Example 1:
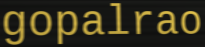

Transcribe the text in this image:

gopalrao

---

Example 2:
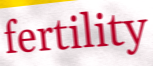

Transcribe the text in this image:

fertility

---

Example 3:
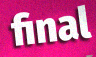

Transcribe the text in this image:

final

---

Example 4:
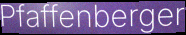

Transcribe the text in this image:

Pfaffenberger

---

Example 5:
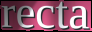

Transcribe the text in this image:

recta